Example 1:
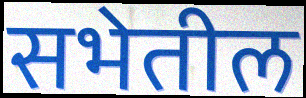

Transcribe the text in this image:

सभेतील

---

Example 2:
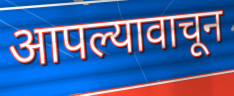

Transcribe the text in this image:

आपल्यावाचून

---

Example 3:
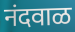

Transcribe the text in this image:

नंदवाळ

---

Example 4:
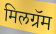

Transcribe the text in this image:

मिलग्रॅम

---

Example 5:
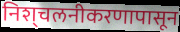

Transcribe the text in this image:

निश्चलनीकरणापासून